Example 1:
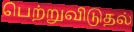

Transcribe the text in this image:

பெற்றுவிடுதல்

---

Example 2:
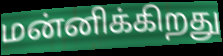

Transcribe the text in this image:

மன்னிக்கிறது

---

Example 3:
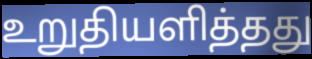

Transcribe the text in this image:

உறுதியளித்தது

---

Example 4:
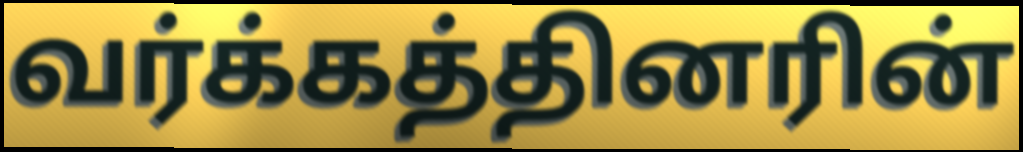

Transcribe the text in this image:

வர்க்கத்தினரின்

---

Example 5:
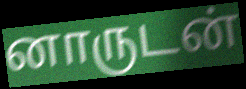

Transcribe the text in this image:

னாருடன்